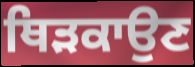
ਥਿੜਕਾਉਣ